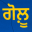
ਗੋਲ਼ੂ